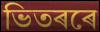
ভিতৰৰে